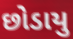
છોડાયુ